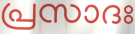
പ്രസാദഃ